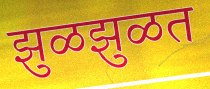
झुळझुळत